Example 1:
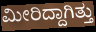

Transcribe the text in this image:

ಮೀರಿದ್ದಾಗಿತ್ತು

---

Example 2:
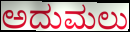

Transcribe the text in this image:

ಅದುಮಲು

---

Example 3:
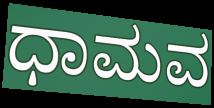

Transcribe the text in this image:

ಧಾಮವ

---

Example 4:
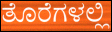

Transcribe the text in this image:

ತೊರೆಗಳಲ್ಲಿ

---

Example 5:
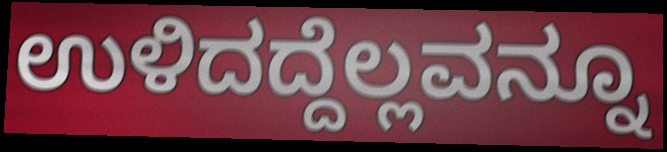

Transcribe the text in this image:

ಉಳಿದದ್ದೆಲ್ಲವನ್ನೂ